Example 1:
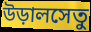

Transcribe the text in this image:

উড়ালসেতু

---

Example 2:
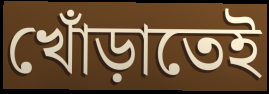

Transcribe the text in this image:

খোঁড়াতেই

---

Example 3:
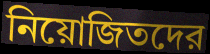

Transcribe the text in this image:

নিয়োজিতদের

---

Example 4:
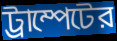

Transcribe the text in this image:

ট্রাম্পেটের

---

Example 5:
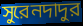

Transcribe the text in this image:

সুরেনদাদুর